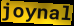
joynal